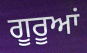
ਗੂਰੂਆਂ